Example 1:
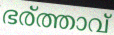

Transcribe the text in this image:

ഭര്ത്താവ്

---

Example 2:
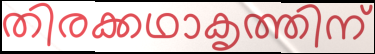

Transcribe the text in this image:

തിരക്കഥാകൃത്തിന്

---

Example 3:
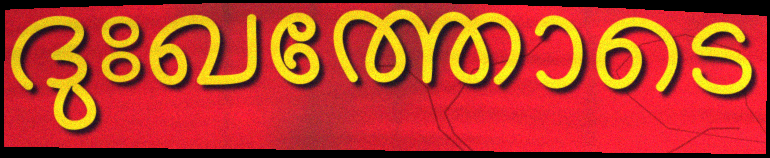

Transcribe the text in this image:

ദുഃഖത്തോടെ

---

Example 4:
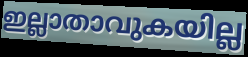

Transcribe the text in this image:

ഇല്ലാതാവുകയില്ല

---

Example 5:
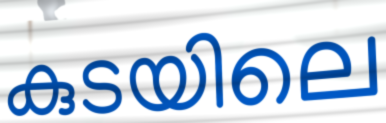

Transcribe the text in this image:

കുടയിലെ